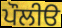
ਪੌਲੀੳ